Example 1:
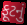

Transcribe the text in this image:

ફૂટનું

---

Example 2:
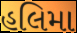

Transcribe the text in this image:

હલિમા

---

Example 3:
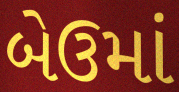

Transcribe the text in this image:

બેઉમાં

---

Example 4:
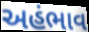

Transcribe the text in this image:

અહંભાવ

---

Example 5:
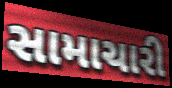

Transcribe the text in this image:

સામાચારી